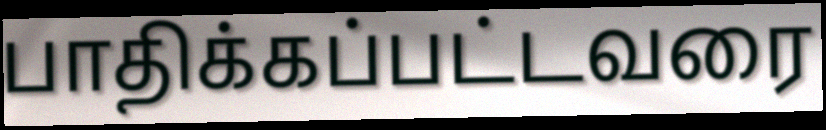
பாதிக்கப்பட்டவரை